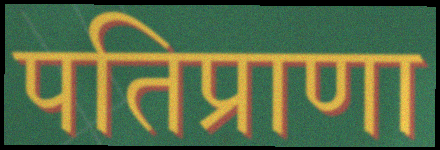
पतिप्राणा